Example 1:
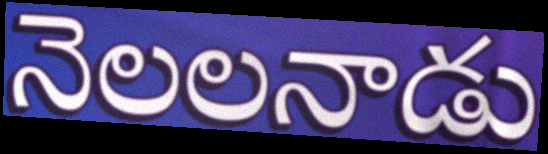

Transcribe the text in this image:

నెలలనాడు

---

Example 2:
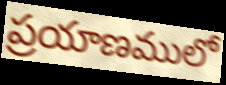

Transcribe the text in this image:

ప్రయాణములో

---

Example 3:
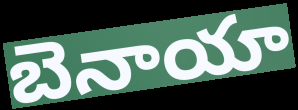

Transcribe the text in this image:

బెనాయా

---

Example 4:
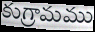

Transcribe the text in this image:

కుగ్రామము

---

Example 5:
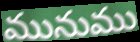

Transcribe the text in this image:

మునుము